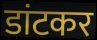
डांटकर